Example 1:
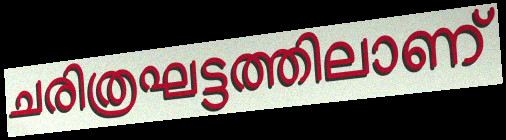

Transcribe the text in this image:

ചരിത്രഘട്ടത്തിലാണ്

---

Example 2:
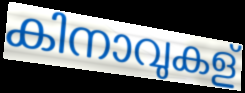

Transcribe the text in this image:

കിനാവുകള്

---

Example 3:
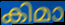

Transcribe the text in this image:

കിമാ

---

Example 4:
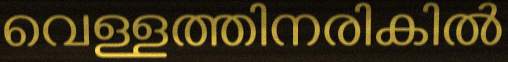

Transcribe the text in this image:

വെള്ളത്തിനരികിൽ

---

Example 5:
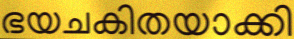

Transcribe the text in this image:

ഭയചകിതയാക്കി